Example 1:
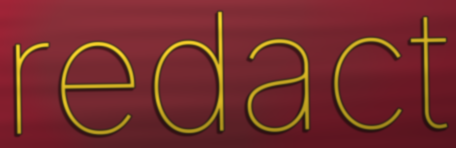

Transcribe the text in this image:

redact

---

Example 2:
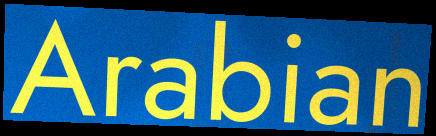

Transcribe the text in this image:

Arabian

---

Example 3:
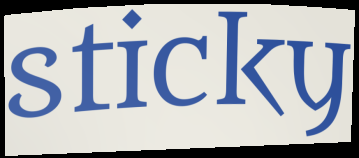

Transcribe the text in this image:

sticky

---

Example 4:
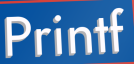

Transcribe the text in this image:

Printf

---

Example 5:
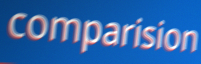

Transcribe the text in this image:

comparision